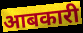
आबकारी